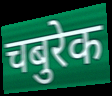
चबुरेक